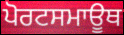
ਪੋਰਟਸਮਾਊਥ